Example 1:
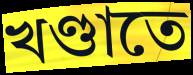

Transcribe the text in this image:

খণ্ডাতে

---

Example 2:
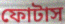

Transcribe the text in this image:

ফোটাস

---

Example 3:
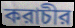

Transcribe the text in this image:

করাচীর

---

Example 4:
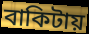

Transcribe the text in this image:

বাকিটায়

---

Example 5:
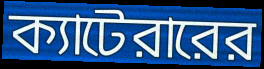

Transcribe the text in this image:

ক্যাটেরারের